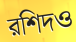
রশিদও